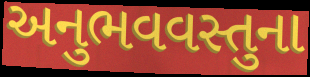
અનુભવવસ્તુના